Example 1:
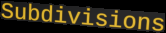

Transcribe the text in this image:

Subdivisions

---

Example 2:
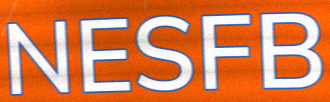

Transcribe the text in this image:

NESFB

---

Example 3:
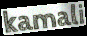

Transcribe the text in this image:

kamali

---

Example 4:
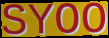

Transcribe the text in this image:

SYOO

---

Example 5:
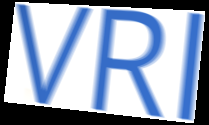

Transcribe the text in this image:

VRI